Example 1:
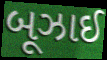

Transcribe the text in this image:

બૂઝાઈ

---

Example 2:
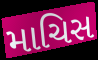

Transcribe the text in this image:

માચિસ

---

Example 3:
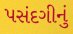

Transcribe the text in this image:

પસંદગીનું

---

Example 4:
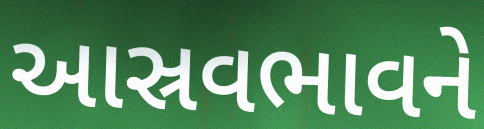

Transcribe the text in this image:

આસ્રવભાવને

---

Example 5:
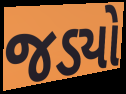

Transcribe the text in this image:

જડ્યો